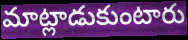
మాట్లాడుకుంటారు